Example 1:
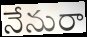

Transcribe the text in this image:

నేనురా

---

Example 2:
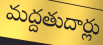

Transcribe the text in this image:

మద్దతుదార్లు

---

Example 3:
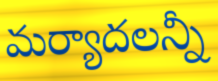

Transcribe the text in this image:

మర్యాదలన్నీ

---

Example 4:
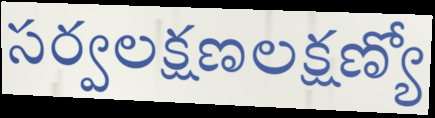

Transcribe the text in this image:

సర్వలక్షణలక్షణ్యో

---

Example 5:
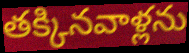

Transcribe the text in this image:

తక్కినవాళ్లను